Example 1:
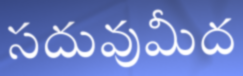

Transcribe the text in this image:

సదువుమీద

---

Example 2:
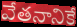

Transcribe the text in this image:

వేతనానికే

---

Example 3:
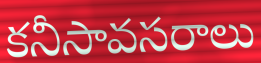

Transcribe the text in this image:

కనీసావసరాలు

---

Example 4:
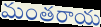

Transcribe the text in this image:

మంతరాయ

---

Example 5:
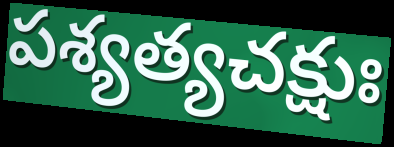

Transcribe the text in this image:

పశ్యత్యచక్షుః